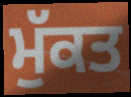
ਮੁੱਕਤ